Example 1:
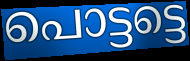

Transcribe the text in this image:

പൊട്ടട്ടെ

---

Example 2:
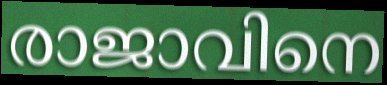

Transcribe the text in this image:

രാജാവിനെ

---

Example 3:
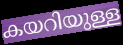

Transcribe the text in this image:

കയറിയുള്ള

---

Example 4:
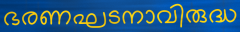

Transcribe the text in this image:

ഭരണഘടനാവിരുദ്ധ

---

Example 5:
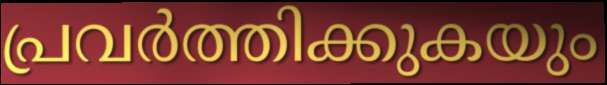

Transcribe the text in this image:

പ്രവർത്തിക്കുകയും